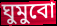
ঘুমুবো